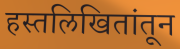
हस्तलिखितांतून